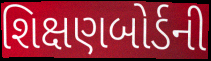
શિક્ષણબોર્ડની